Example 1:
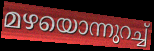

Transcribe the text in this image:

മഴയൊന്നുറച്ച്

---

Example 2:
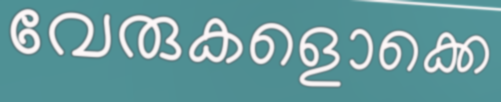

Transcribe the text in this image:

വേരുകളൊക്കെ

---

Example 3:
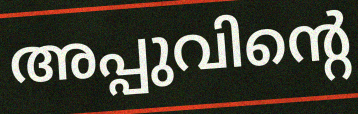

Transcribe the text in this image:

അപ്പുവിന്റെ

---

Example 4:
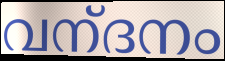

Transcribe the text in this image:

വന്‌ദനം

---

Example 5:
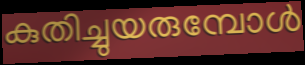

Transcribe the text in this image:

കുതിച്ചുയരുമ്പോൾ